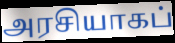
அரசியாகப்